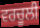
ਵਰਚੂਲੀ